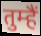
तुम्हैं